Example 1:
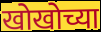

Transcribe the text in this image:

खोखोच्या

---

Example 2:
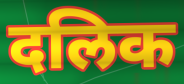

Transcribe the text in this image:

दलिक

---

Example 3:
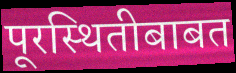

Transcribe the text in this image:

पूरस्थितीबाबत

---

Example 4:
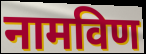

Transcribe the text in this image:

नामविण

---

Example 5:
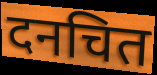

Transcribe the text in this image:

दनचित